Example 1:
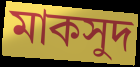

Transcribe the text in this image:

মাকসুদ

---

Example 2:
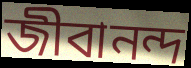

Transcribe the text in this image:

জীবানন্দ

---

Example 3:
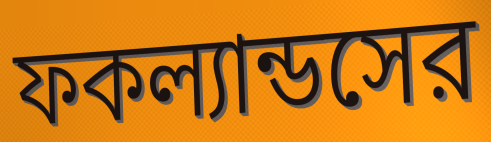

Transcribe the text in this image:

ফকল্যান্ডসের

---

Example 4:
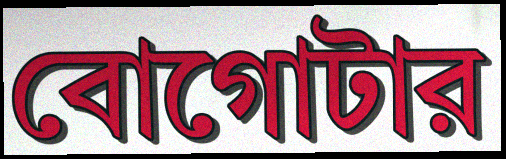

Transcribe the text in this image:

বোগোটার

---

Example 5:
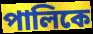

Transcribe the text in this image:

পালিকে